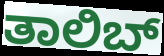
ತಾಲಿಬ್